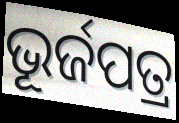
ଭୂର୍ଜପତ୍ର